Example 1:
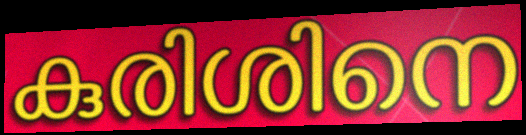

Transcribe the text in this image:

കുരിശിനെ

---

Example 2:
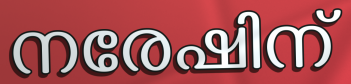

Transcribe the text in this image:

നരേഷിന്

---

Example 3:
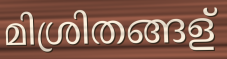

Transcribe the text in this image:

മിശ്രിതങ്ങള്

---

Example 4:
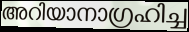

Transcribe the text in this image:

അറിയാനാഗ്രഹിച്ച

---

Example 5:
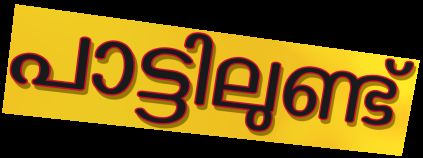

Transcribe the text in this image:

പാട്ടിലുണ്ട്